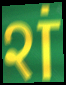
शं